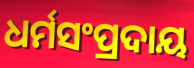
ଧର୍ମସଂପ୍ରଦାୟ